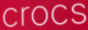
crocs